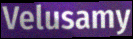
Velusamy